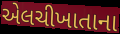
એલચીખાતાના